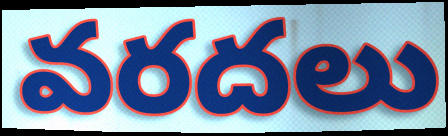
వరదలు